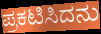
ಪ್ರಕಟಿಸಿದನು